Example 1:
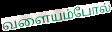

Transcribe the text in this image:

வளையம்போல்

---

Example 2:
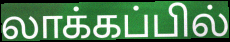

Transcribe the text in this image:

லாக்கப்பில்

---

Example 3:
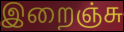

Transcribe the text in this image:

இறைஞ்சு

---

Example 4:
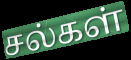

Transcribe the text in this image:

சல்கள்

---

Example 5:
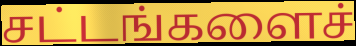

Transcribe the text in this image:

சட்டங்களைச்